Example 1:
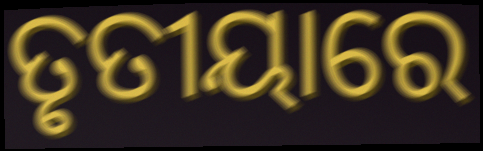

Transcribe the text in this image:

ତୃତୀୟାରେ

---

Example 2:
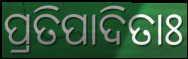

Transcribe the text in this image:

ପ୍ରତିପାଦିତାଃ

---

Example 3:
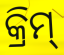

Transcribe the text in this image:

କ୍ରିମ୍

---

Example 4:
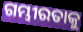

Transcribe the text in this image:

ଗମ୍ଭୀରତାକୁ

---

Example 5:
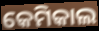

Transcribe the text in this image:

କେମିକାଲ